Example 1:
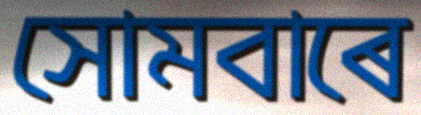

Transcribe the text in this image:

সোমবাৰে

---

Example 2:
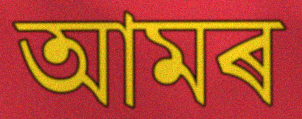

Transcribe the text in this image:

আমৰ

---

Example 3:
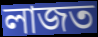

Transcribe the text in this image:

লাজত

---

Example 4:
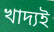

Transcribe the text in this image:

খাদ্যই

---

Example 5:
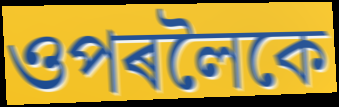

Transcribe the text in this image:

ওপৰলৈকে